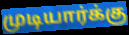
முடியார்க்கு